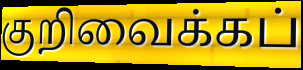
குறிவைக்கப்